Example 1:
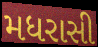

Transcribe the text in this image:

મધરાસી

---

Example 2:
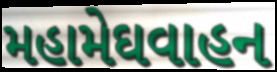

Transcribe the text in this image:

મહામેઘવાહન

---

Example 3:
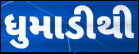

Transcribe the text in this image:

ધુમાડીથી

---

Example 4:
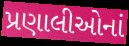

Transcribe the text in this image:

પ્રણાલીઓનાં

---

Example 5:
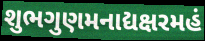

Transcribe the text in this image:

શુભગુણમનાદ્યક્ષરમહં